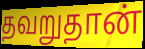
தவறுதான்